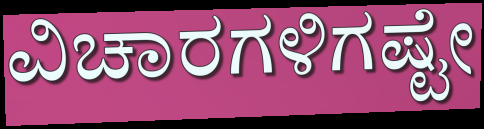
ವಿಚಾರಗಳಿಗಷ್ಟೇ